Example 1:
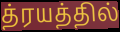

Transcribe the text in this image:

த்ரயத்தில்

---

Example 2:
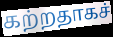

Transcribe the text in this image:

கற்றதாகச்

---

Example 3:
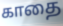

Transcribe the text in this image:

காதை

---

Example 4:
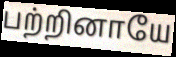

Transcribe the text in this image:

பற்றினாயே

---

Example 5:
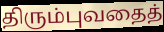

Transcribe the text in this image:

திரும்புவதைத்